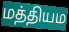
மத்தியம